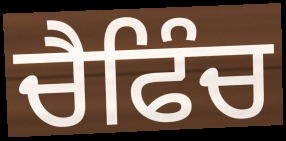
ਚੈਫਿੰਚ